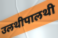
उलथीपालथी